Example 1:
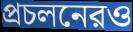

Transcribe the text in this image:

প্রচলনেরও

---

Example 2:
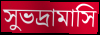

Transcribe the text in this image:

সুভদ্রামাসি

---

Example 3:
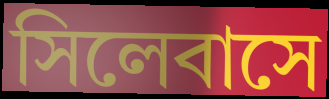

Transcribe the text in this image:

সিলেবাসে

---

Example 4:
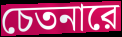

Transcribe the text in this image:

চেতনারে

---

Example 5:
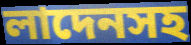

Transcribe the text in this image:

লাদেনসহ